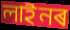
লাইনৰ